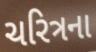
ચરિત્રના